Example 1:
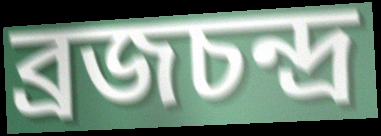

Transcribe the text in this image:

ব্রজচন্দ্র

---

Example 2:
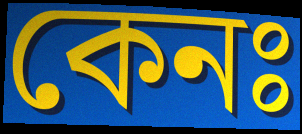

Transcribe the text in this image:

কেনঃ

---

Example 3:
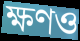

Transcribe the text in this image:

ক্ষণও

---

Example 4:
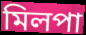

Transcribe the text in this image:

মিলপা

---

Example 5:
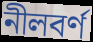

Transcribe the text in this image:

নীলবর্ণ